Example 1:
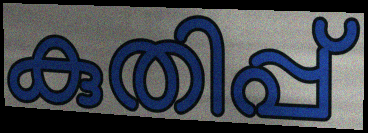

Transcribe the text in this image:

കുതിപ്പ്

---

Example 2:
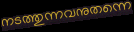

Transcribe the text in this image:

നടത്തുന്നവനുതന്നെ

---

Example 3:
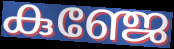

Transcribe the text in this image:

കുഞ്ജേ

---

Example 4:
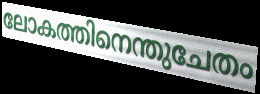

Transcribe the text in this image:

ലോകത്തിനെന്തുചേതം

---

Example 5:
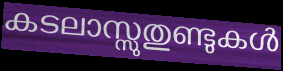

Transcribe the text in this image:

കടലാസ്സുതുണ്ടുകൾ